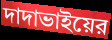
দাদাভাইয়ের